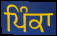
ਪਿੰਕਾ